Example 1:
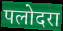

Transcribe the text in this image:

पलोदरा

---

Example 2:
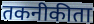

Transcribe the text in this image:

तकनीकीता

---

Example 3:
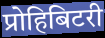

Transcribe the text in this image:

प्रोहिबिटरी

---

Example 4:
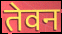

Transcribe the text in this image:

तेवन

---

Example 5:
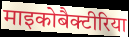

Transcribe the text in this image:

माइकोबैक्टीरिया